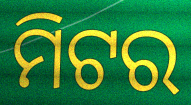
ମିଟର